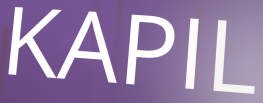
KAPIL